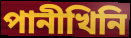
পানীখিনি